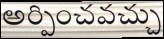
అర్పించవచ్చు